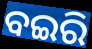
ବଇରି